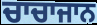
ਚਾਚਾਜਾਨ